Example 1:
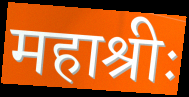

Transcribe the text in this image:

महाश्रीः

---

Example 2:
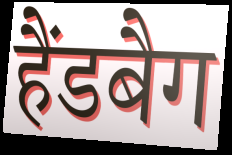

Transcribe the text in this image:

हैंडबैग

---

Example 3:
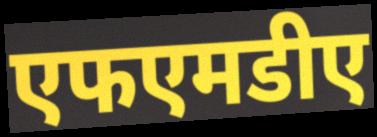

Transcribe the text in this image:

एफएमडीए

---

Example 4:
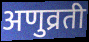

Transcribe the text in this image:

अणुव्रती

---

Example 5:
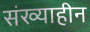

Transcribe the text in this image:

संख्याहीन